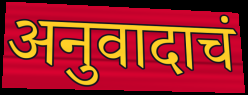
अनुवादाचं